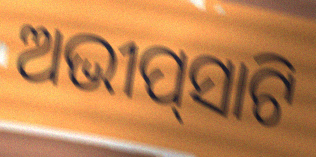
ଅଭୀପ୍‌ସାଟି